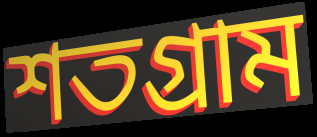
শতগ্রাম